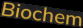
Biochem